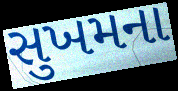
સુખમના